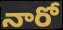
నారో